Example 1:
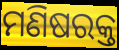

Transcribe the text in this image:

ମଣିଷରକ୍ତ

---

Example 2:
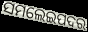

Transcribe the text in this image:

ସମଲେଇପଦର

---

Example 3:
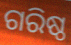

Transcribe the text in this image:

ଗରିଷ୍ଠ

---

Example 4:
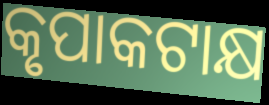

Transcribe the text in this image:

କୃପାକଟାକ୍ଷ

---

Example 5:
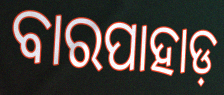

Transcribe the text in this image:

ବାରପାହାଡ଼